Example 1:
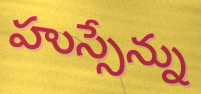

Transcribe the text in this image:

హుస్సేన్ను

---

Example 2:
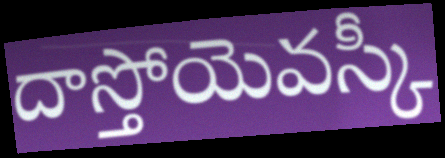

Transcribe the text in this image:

దాస్తోయెవస్కీ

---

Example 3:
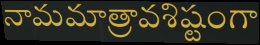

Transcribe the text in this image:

నామమాత్రావశిష్టంగా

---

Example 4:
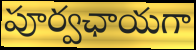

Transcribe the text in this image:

పూర్వఛాయగా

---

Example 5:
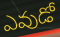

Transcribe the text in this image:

ఎవుడో